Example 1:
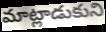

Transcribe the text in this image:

మాట్లాడుకుని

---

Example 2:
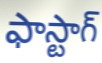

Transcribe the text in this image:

ఫాస్టాగ్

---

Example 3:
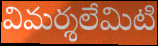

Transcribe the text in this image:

విమర్శలేమిటి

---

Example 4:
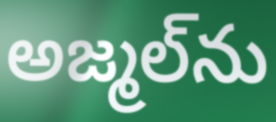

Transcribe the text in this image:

అజ్మల్‌ను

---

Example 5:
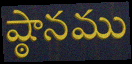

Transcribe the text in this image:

ష్ఠానము